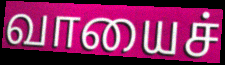
வாயைச்